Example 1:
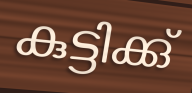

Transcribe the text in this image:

കുട്ടിക്കു്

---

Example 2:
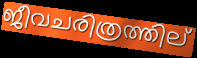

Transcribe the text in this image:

ജീവചരിത്രത്തില്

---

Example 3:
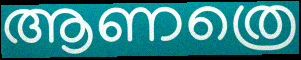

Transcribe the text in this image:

ആണത്രെ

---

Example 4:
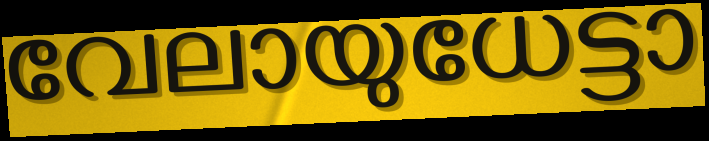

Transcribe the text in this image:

വേലായുധേട്ടാ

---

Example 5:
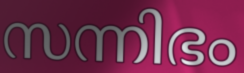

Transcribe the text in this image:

സന്നിഭം